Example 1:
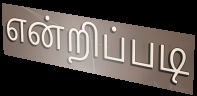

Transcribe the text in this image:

என்றிப்படி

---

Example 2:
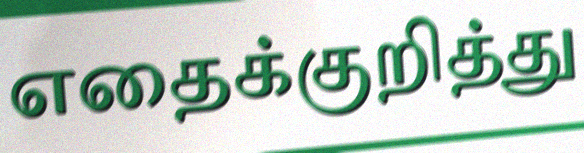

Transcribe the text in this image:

எதைக்குறித்து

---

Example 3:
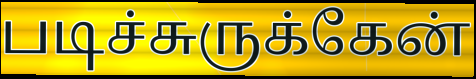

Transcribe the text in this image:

படிச்சுருக்கேன்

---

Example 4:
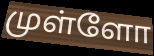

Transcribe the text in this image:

முள்ளோ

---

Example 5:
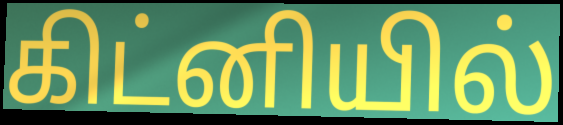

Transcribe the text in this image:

கிட்னியில்